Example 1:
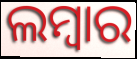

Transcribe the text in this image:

ଲମ୍ୱାର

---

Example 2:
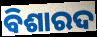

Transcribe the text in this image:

ବିଶାରଦ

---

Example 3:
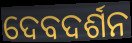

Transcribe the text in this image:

ଦେବଦର୍ଶନ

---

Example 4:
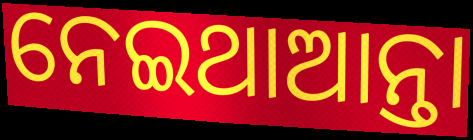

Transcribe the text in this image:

ନେଇଥାଆନ୍ତା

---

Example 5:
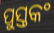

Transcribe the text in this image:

ପୁସ୍ତକଂ